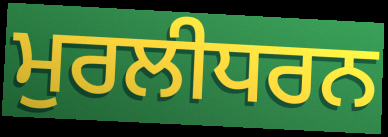
ਮੁਰਲੀਧਰਨ